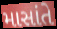
માસાંતે